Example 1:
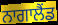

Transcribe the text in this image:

ਨਾਗਾਲੈਂਡ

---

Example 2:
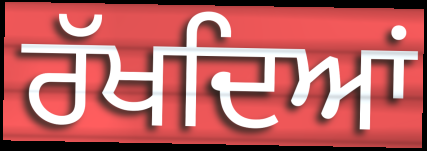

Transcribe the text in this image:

ਰੱਖਦਿਆਂ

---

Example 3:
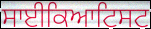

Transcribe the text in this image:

ਸਾਈਕਿਆਟਿਸਟ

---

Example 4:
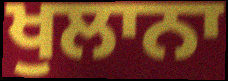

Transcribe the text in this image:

ਖੁਲਾਨਾ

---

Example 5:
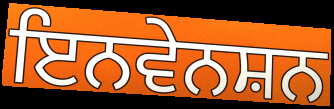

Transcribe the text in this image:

ਇਨਵੇਨਸ਼ਨ